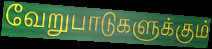
வேறுபாடுகளுக்கும்